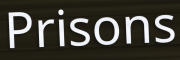
Prisons